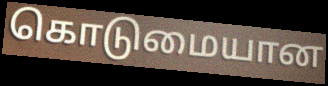
கொடுமையான